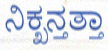
ನಿಕ್ಖನ್ತತ್ತಾ